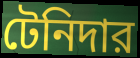
টেনিদার